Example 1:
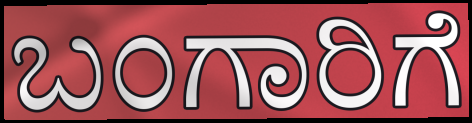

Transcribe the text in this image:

ಬಂಗಾರಿಗೆ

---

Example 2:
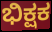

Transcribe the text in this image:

ಭಿಕ್ಷಕ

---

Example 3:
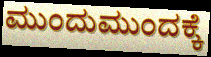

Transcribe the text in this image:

ಮುಂದುಮುಂದಕ್ಕೆ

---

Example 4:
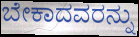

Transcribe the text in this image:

ಬೇಕಾದವರನ್ನು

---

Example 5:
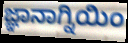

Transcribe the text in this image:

ಜ್ಞಾನಾಗ್ನಿಯಿಂ